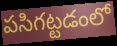
పసిగట్టడంలో